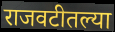
राजवटीतल्या